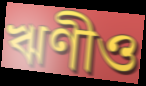
ঋণীও